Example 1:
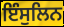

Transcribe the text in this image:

ਇੰਸੁਲਿਨ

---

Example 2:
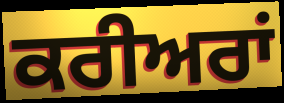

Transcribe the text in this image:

ਕਰੀਅਰਾਂ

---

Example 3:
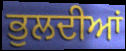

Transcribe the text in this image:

ਭੁਲਦੀਆਂ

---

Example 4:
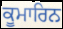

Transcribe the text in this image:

ਕੂਮਾਰਿਨ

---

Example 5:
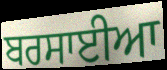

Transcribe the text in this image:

ਬਰਸਾਈਆ